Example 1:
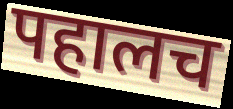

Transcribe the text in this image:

पहालच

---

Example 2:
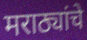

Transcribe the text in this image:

मराठ्यांचे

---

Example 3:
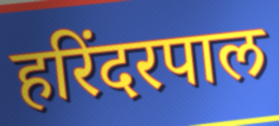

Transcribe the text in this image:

हरिंदरपाल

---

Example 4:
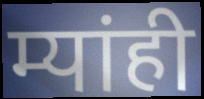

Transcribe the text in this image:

म्यांही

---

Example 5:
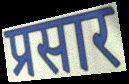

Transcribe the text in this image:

प्रसार